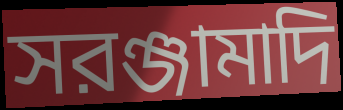
সরঞ্জামাদি